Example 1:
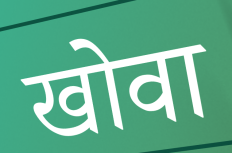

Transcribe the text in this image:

खोवा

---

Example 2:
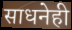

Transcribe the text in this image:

साधनेही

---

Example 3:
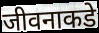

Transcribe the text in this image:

जीवनाकडे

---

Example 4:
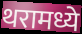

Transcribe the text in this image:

थरामध्ये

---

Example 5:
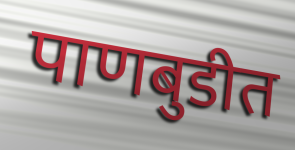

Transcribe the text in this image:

पाणबुडीत